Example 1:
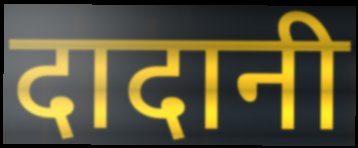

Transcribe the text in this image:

दादानी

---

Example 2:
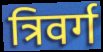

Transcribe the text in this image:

त्रिवर्ग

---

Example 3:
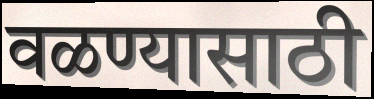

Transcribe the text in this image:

वळण्यासाठी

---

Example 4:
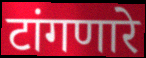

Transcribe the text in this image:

टांगणारे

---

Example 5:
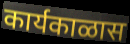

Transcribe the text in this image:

कार्यकाळास